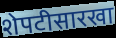
शेपटीसारखा